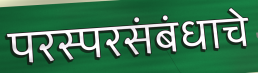
परस्परसंबंधाचे